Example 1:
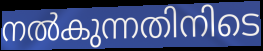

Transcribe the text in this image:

നൽകുന്നതിനിടെ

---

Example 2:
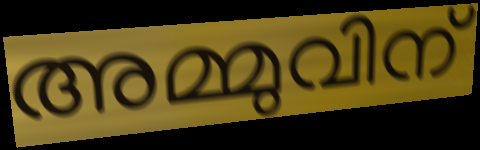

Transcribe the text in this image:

അമ്മുവിന്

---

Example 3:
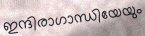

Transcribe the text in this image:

ഇന്ദിരാഗാന്ധിയേയും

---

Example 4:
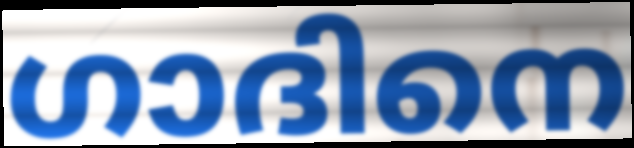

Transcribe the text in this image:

ഗാദിനെ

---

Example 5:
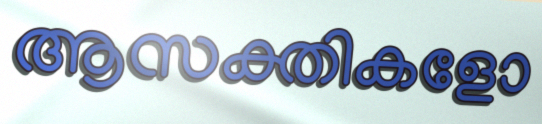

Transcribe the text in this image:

ആസക്തികളോ